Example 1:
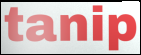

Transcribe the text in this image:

tanip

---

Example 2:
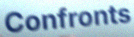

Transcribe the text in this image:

Confronts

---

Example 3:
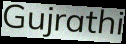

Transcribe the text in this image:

Gujrathi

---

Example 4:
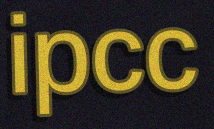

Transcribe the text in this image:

ipcc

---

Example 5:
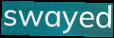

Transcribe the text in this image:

swayed